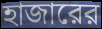
হাজারের